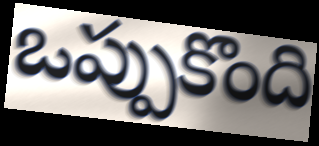
ఒప్పుకొంది